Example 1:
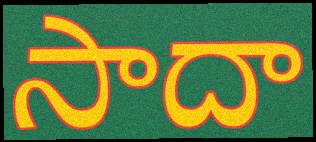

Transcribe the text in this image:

సాదా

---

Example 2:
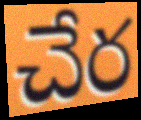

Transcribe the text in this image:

చేర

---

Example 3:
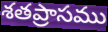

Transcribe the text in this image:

శతప్రాసము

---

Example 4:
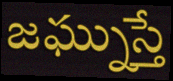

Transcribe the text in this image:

జఘ్నుస్తే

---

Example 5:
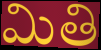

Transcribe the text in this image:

మితి